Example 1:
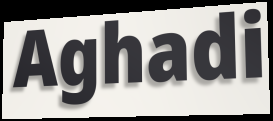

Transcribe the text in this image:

Aghadi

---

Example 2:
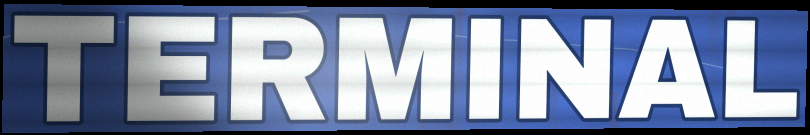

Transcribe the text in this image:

TERMINAL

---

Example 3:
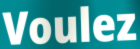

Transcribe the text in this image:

Voulez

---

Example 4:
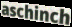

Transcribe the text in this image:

aschinch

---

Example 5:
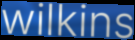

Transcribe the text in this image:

wilkins